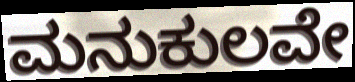
ಮನುಕುಲವೇ